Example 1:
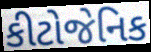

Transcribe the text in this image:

કીટોજેનિક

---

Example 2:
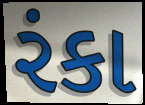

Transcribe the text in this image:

રંકા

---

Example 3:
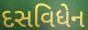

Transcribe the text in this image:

દસવિધેન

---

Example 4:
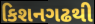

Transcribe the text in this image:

કિશનગઢથી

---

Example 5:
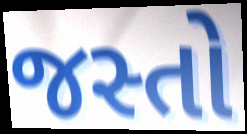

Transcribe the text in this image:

જસ્તો